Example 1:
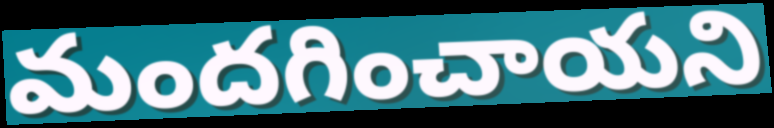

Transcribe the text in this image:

మందగించాయని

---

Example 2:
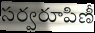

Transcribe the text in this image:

సర్వరూపిణీ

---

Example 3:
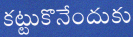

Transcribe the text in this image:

కట్టుకొనేందుకు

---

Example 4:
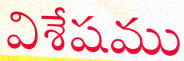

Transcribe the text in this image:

విశేషము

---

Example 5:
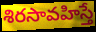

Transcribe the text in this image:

శిరసావహిస్తే